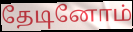
தேடினோம்